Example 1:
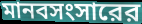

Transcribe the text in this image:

মানবসংসারের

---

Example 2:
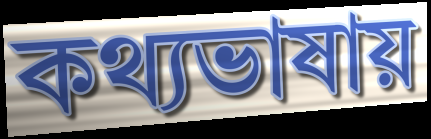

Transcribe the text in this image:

কথ্যভাষায়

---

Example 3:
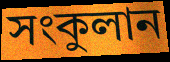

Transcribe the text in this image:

সংকুলান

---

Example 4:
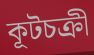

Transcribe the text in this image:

কূটচক্রী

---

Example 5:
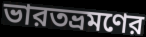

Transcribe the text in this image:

ভারতভ্রমণের